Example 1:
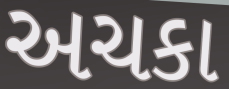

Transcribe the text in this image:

અચકા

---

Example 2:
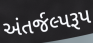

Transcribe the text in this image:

અંતર્જલ્પરૂપ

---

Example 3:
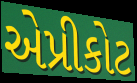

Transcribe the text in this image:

એપ્રીકોટ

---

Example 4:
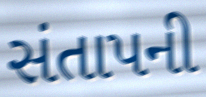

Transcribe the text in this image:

સંતાપની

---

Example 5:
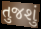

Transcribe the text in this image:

તુજશું